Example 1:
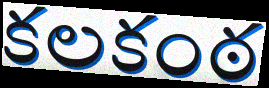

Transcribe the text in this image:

కలకంఠ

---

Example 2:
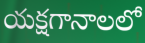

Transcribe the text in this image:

యక్షగానాలలో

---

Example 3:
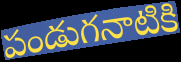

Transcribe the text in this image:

పండుగనాటికి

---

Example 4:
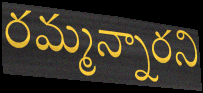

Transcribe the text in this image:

రమ్మన్నారని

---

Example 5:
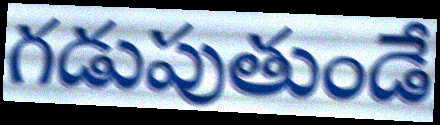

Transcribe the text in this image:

గడుపుతుండే